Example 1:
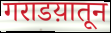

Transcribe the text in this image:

गराडय़ातून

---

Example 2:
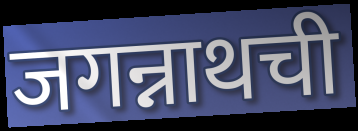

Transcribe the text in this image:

जगन्नाथची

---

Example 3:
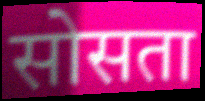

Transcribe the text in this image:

सोसता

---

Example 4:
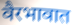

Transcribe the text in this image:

वैरभावात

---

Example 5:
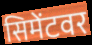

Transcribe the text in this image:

सिमेंटवर